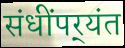
संधींपर्यंत